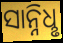
ସାନ୍ନିଧୢ